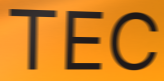
TEC